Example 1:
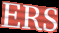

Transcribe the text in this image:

ERS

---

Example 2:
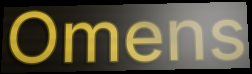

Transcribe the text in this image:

Omens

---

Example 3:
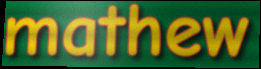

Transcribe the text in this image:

mathew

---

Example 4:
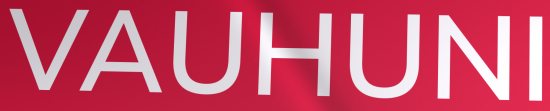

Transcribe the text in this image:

VAUHUNI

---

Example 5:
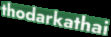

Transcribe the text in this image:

thodarkathai